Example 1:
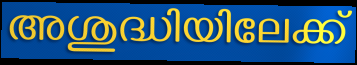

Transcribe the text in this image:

അശുദ്ധിയിലേക്ക്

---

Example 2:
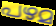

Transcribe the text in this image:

പഴമ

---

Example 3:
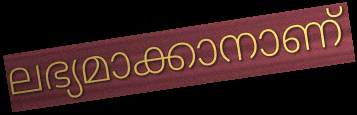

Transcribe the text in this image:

ലഭ്യമാക്കാനാണ്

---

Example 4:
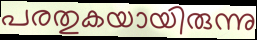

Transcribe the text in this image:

പരതുകയായിരുന്നു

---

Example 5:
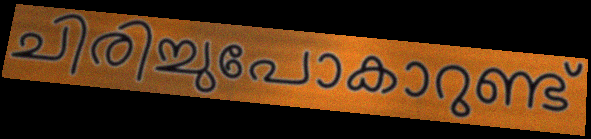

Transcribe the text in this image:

ചിരിച്ചുപോകാറുണ്ട്